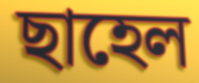
ছাহেল